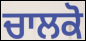
ਚਾਲਕੋ